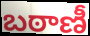
బఠాణీ